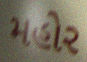
મહોર